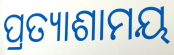
ପ୍ରତ୍ୟାଶାମୟ